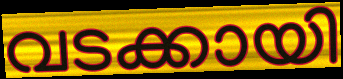
വടക്കായി